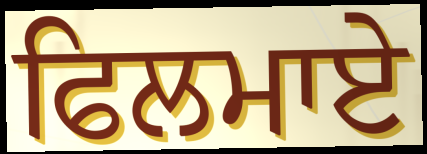
ਫਿਲਮਾਏ